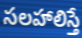
సలహాలిస్తే